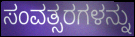
ಸಂವತ್ಸರಗಳನ್ನು